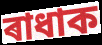
ৰাধাক